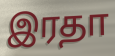
இரதா